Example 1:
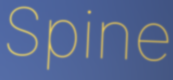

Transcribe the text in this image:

Spine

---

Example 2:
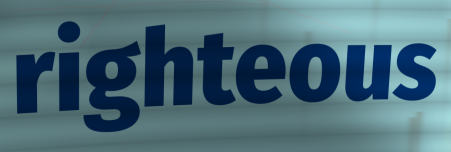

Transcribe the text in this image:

righteous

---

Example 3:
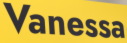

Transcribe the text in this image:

Vanessa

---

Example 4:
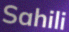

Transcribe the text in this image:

Sahili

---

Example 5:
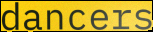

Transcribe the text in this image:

dancers